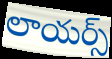
లాయర్స్